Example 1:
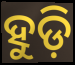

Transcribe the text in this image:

ହୁଡ଼ି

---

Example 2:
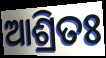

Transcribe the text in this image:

ଆଶ୍ରିତଃ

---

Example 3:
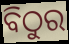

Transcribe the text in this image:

ବିଠୁର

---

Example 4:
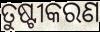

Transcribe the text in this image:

ତୁଷ୍ଟୀକରଣ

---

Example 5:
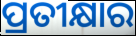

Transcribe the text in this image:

ପ୍ରତୀକ୍ଷାର